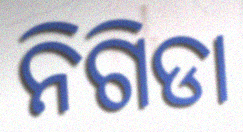
ନିଗିଡା